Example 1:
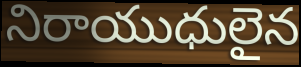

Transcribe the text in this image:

నిరాయుధులైన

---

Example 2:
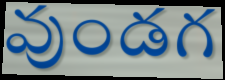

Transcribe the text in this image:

వుండగ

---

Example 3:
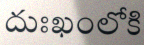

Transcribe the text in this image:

దుఃఖంలోకి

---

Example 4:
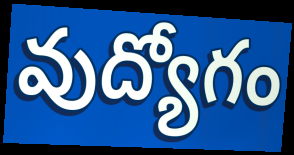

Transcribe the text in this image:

వుద్యోగం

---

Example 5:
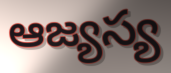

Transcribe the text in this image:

ఆజ్యస్య